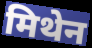
मिथेन